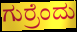
ಗುರ್ರೆಂದು